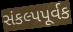
સંકલ્પપૂર્વક